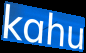
kahu